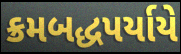
ક્રમબદ્ધપર્યાયે